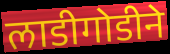
लाडीगोडीने